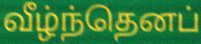
வீழ்ந்தெனப்